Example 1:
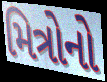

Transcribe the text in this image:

મિત્રોનો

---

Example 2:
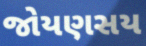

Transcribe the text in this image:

જોયણસય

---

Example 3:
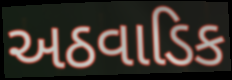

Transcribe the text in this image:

અઠવાડિક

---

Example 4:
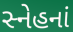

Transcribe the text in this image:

સ્નેહનાં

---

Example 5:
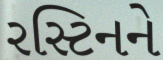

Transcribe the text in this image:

રસ્ટિનને